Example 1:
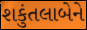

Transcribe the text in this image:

શકુંતલાબેને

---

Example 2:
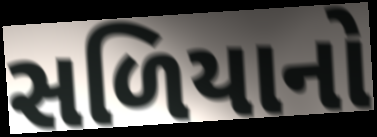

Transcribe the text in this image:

સળિયાનો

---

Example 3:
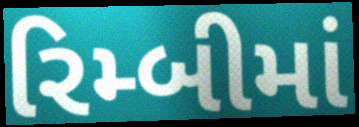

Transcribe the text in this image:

રિમ્બીમાં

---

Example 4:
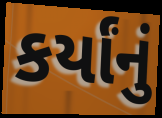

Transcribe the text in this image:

કર્યાંનું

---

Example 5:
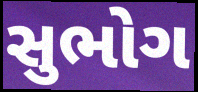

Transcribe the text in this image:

સુભોગ